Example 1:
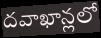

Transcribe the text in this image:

దవాఖాన్లలో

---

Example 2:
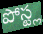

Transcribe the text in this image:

పోస్ట్ల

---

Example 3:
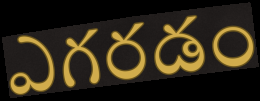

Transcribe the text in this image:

ఎగరడం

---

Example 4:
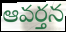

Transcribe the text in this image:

ఆవర్తన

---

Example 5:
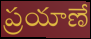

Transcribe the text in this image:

ప్రయాణే